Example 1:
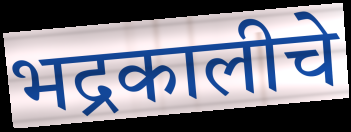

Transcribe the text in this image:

भद्रकालीचे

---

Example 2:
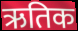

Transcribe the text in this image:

ऋतिक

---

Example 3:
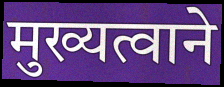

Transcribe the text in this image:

मुख्यत्वाने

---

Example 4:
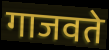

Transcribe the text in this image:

गाजवते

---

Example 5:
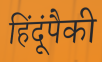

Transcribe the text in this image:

हिंदूंपैकी